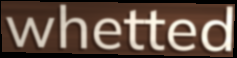
whetted